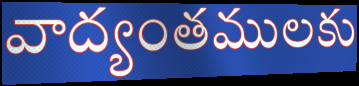
వాద్యంతములకు